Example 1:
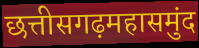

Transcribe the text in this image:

छत्तीसगढ़महासमुंद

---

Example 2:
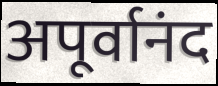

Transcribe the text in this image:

अपूर्वानंद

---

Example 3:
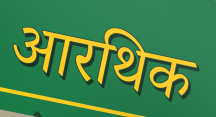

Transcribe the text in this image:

आरथिक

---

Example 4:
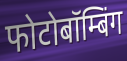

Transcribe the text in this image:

फोटोबॉम्बिंग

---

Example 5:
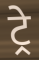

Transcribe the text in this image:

ट्रे